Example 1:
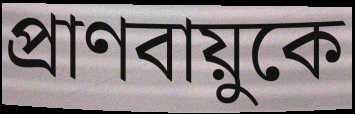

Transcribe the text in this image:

প্রাণবায়ুকে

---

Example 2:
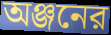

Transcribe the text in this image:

অঞ্জনের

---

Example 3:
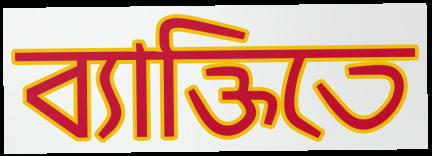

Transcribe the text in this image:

ব্যাক্তিতে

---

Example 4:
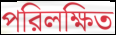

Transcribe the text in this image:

পরিলক্ষিত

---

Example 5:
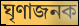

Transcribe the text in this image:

ঘৃণাজনক